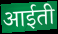
आईती